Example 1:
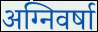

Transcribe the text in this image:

अग्निवर्षा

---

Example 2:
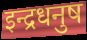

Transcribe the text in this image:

इन्द्रधनुष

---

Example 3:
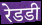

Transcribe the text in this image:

रेडडी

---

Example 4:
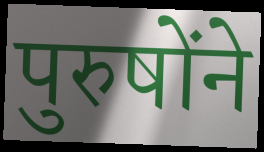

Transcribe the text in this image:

पुरुषोंने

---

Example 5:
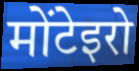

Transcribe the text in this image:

मोंटेइरो